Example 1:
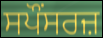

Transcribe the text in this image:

ਸਪੌਂਸਰਜ਼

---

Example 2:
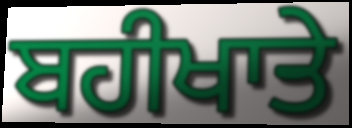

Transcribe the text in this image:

ਬਹੀਖਾਤੇ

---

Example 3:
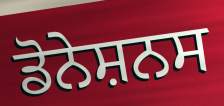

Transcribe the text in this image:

ਡੋਨੇਸ਼ਨਸ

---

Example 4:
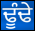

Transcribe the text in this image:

ਢੂੰਢੇ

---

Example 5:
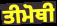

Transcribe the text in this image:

ਤੀਮੋਥੀ